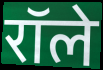
रॉले